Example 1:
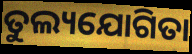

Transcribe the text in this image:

ତୁଲ୍ୟଯୋଗିତା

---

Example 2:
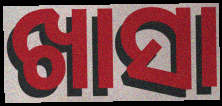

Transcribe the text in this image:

ଖାସା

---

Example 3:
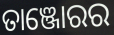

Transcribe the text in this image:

ତାଞ୍ଜୋରର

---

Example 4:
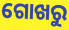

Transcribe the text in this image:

ଗୋଖରୁ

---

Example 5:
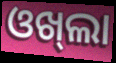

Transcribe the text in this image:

ଓଖ୍‌ଲା